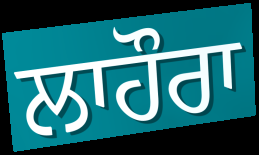
ਲਾਹੌਰਾ